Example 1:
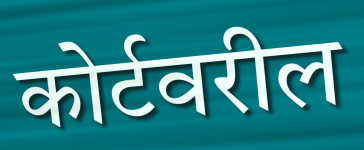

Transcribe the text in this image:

कोर्टवरील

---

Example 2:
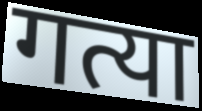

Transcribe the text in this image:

गत्या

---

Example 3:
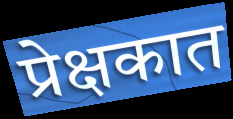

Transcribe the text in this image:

प्रेक्षकात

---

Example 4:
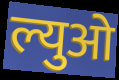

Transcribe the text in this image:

ल्युओ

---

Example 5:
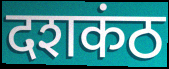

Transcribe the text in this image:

दशकंठ